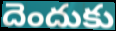
దెందుకు